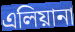
এলিয়ানা